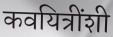
कवयित्रींशी